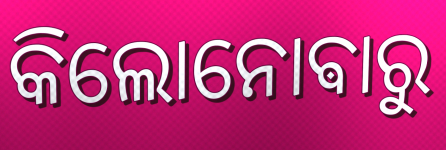
କିଲୋନୋଵାରୁ